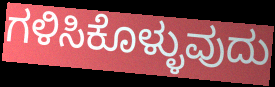
ಗಳಿಸಿಕೊಳ್ಳುವುದು